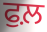
ਫੁਲ਼